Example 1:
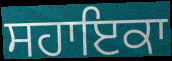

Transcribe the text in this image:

ਸਹਾਇਕਾ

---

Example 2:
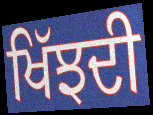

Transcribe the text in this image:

ਖਿੱਝਦੀ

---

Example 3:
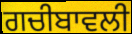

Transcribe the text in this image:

ਗਚੀਬਾਵਲੀ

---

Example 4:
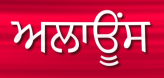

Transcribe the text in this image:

ਅਲਾਊੰਸ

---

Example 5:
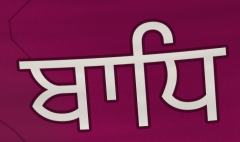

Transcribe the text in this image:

ਬਾਧਿ